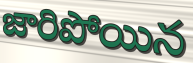
జారిపోయిన